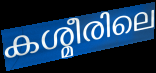
കശ്മീരിലെ